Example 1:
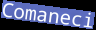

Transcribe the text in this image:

Comaneci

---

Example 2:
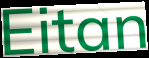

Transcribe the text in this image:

Eitan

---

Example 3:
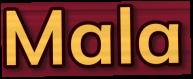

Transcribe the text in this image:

Mala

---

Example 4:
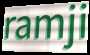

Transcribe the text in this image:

ramji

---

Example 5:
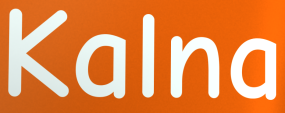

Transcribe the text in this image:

Kalna